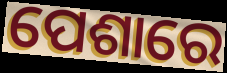
ପେଶାରେ